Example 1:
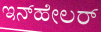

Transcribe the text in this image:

ಇನ್‌ಹೇಲರ್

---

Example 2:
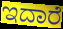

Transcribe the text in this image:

ಇದಾರೆ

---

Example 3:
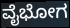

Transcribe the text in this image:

ವೈಭೋಗ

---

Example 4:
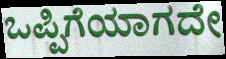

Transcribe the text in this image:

ಒಪ್ಪಿಗೆಯಾಗದೇ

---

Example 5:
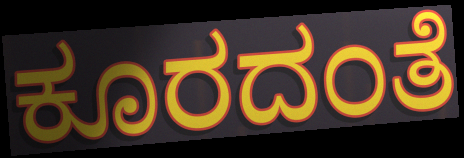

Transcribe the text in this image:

ಕೂರದಂತೆ